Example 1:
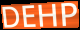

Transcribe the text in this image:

DEHP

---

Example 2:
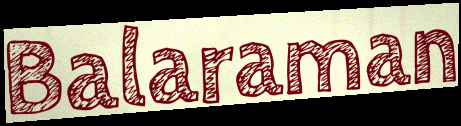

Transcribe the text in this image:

Balaraman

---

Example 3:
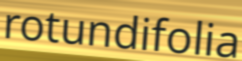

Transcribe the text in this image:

rotundifolia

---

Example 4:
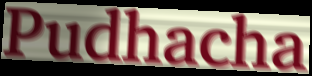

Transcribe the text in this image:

Pudhacha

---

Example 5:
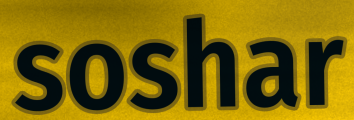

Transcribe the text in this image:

soshar